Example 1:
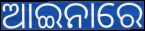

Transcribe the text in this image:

ଆଇନାରେ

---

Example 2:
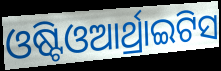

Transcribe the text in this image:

ଓଷ୍ଟିଓଆର୍ଥ୍ରାଇଟିସ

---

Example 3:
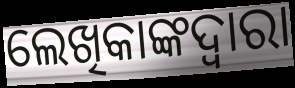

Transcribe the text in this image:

ଲେଖିକାଙ୍କଦ୍ୱାରା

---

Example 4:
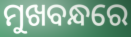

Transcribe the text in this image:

ମୁଖବନ୍ଧରେ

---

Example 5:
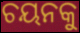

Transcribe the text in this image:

ଚୟନକୁ